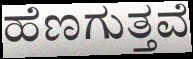
ಹೆಣಗುತ್ತವೆ